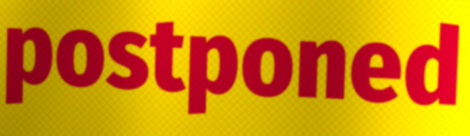
postponed